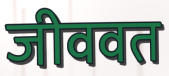
जीववत